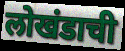
लोखंडाची